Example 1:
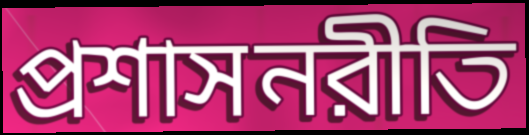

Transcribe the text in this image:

প্রশাসনরীতি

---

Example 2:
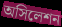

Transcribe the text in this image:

অসিলেশন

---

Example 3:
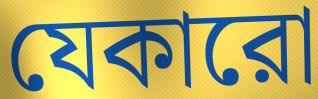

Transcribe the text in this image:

যেকারো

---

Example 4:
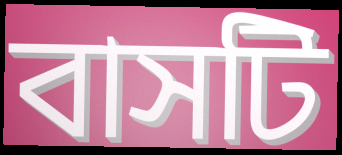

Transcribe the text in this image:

বাসটি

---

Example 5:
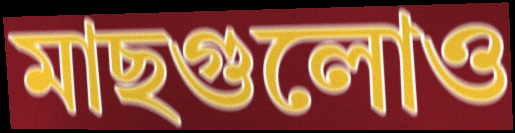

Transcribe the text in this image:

মাছগুলোও